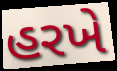
હરખે